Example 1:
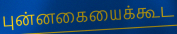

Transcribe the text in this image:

புன்னகையைக்கூட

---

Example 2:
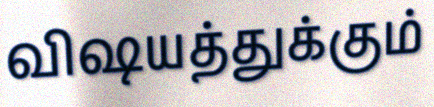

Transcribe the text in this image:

விஷயத்துக்கும்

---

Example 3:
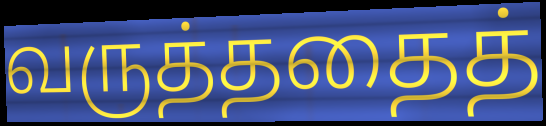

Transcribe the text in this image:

வருத்ததைத்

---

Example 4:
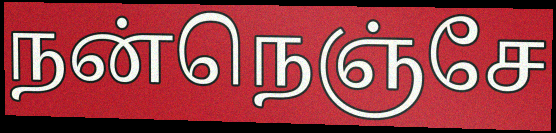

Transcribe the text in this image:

நன்நெஞ்சே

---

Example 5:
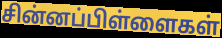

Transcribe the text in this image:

சின்னப்பிள்ளைகள்